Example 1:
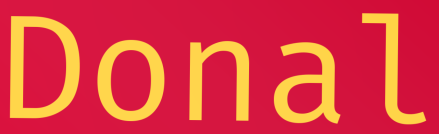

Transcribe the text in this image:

Donal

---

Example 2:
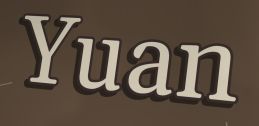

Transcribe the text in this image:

Yuan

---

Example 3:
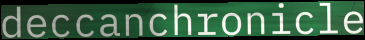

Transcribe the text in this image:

deccanchronicle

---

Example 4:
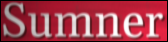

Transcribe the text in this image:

Sumner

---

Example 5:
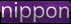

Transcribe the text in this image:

nippon